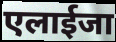
एलाईजा